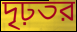
দৃঢ়তর